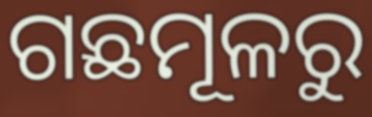
ଗଛମୂଳରୁ